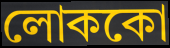
লোককো